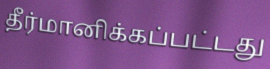
தீர்மானிக்கப்பட்டது